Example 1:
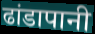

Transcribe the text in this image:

ढांडापानी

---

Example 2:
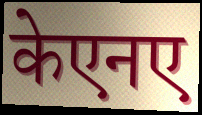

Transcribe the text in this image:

केएनए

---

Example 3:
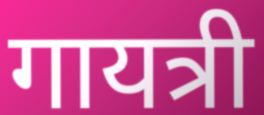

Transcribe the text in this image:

गायत्री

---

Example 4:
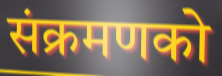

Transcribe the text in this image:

संक्रमणको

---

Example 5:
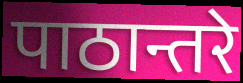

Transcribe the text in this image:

पाठान्तरे